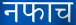
नफाच